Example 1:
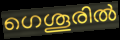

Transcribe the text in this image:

ഗെശൂരിൽ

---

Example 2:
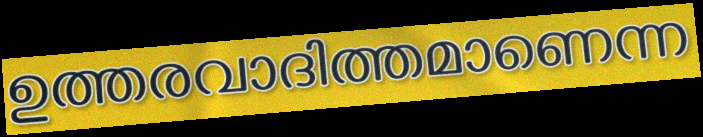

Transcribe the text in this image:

ഉത്തരവാദിത്തമാണെന്ന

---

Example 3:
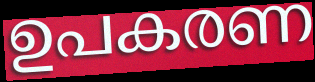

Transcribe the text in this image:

ഉപകരണ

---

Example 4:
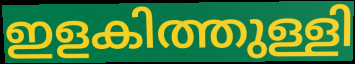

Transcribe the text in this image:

ഇളകിത്തുള്ളി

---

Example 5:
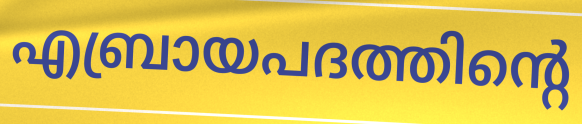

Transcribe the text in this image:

എബ്രായപദത്തിന്റെ